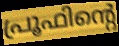
പ്രൂഫിന്റെ